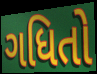
ગધિતો